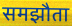
समझौता